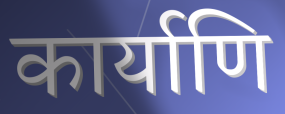
कार्याणि